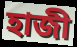
হাজী